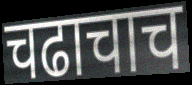
चढाचाच